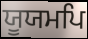
ਯੂਯਮਪਿ